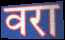
वरा